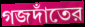
গজদাঁতের